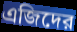
এজিদের